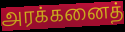
அரக்கனைத்